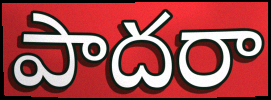
పాదరా